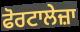
ਫੋਰਟਾਲੇਜ਼ਾ